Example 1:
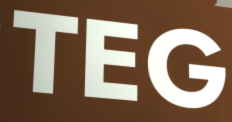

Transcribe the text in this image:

TEG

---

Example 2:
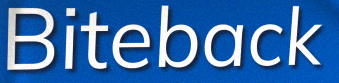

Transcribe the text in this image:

Biteback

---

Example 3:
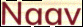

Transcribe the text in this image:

Naav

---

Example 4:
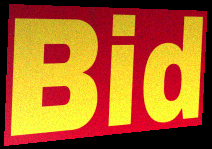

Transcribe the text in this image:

Bid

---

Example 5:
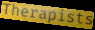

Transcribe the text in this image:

Therapists